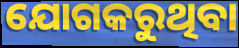
ଯୋଗକରୁଥିବା